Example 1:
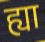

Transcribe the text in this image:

ह्या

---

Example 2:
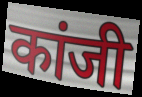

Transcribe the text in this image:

कांजी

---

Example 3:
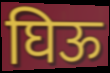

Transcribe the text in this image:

घिऊ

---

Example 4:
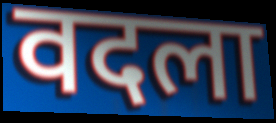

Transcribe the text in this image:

वदला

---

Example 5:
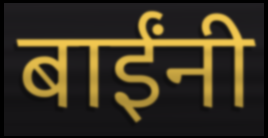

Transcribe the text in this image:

बाईंनी